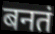
बनतं